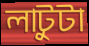
লাটুটা